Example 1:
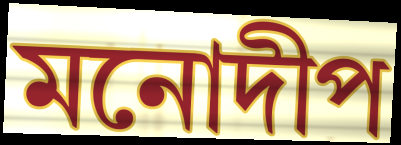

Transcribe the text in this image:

মনোদীপ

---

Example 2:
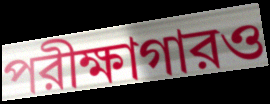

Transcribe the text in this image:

পরীক্ষাগারও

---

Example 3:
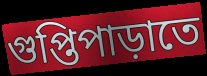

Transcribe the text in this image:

গুপ্তিপাড়াতে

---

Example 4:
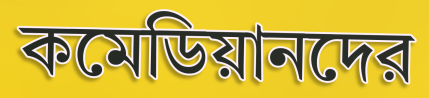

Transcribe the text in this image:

কমেডিয়ানদের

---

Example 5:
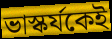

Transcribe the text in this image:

ভাস্কর্যকেই